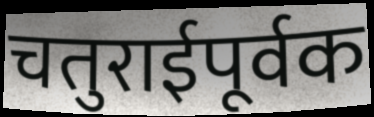
चतुराईपूर्वक